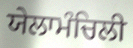
ਯੇਲਾਮੰਚਿਲੀ